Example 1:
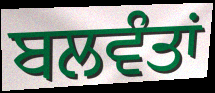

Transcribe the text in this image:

ਬਲਵੰਤਾਂ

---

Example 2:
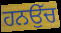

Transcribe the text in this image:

ਹਨਉੱਚ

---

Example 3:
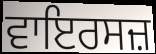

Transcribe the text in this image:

ਵਾਇਰਸਜ਼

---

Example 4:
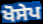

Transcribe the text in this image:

ਖੋਸੇਪ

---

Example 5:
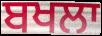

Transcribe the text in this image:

ਬਖਲਾ